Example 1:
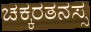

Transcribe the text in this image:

ಚಕ್ಕರತನಸ್ಸ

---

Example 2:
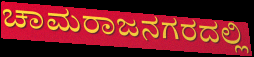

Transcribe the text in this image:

ಚಾಮರಾಜನಗರದಲ್ಲಿ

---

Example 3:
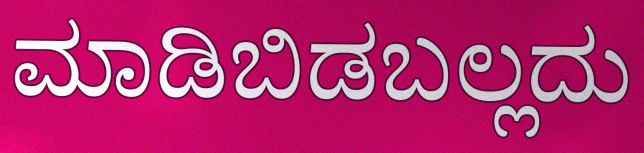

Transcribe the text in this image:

ಮಾಡಿಬಿಡಬಲ್ಲದು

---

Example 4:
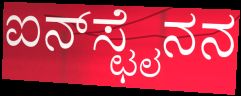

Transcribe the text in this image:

ಐನ್‌ಸ್ಟೈನನ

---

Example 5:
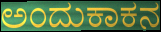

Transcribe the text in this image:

ಅಂದುಕಾಕನ